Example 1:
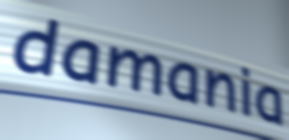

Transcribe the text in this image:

damania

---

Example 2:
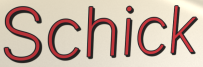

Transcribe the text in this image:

Schick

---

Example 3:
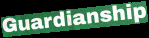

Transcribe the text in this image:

Guardianship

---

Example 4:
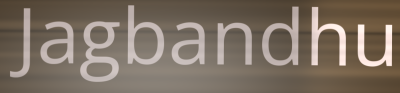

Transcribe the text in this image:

Jagbandhu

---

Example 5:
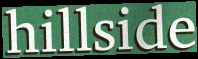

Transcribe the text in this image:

hillside